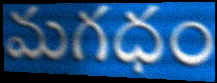
మగధం